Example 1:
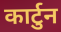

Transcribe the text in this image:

कार्टुन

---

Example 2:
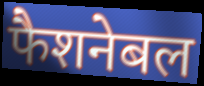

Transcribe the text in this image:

फैशनेबल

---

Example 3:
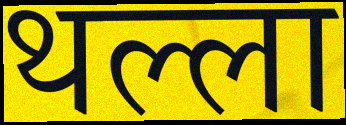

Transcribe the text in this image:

थल्ला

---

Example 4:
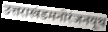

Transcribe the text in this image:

उत्तराखंडमनोरंजनयूथ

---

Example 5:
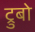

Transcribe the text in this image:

ट्रुबो